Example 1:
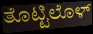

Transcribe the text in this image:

ತೊಟ್ಟಿಲೊಳ್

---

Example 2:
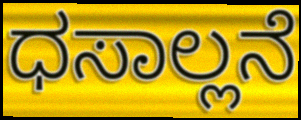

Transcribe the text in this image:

ಧಸಾಲ್ಲನೆ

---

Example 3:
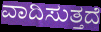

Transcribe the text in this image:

ವಾದಿಸುತ್ತದೆ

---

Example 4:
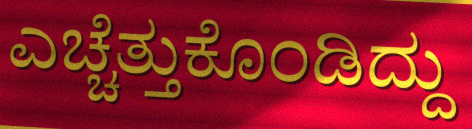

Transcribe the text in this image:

ಎಚ್ಚೆತ್ತುಕೊಂಡಿದ್ದು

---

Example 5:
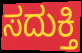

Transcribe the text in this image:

ಸದುಕ್ತಿ